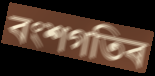
বংশগতিৰ